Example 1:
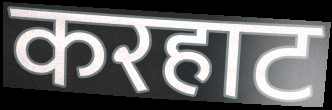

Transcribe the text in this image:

करहाट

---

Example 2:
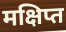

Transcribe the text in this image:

मक्षिप्त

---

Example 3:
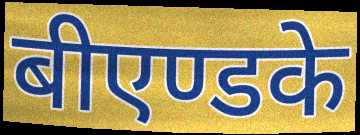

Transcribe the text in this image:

बीएण्डके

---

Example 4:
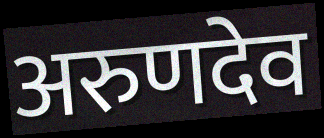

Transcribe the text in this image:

अरुणदेव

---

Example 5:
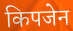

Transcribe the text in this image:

किपजेन